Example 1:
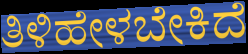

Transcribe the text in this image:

ತಿಳಿಹೇಳಬೇಕಿದೆ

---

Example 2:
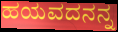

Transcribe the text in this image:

ಹಯವದನನ್ನ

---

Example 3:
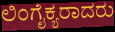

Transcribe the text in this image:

ಲಿಂಗೈಕ್ಯರಾದರು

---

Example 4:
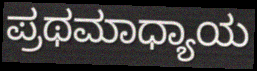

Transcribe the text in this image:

ಪ್ರಥಮಾಧ್ಯಾಯ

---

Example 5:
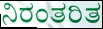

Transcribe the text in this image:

ನಿರಂತರಿತ